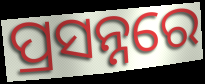
ପ୍ରସନ୍ନରେ